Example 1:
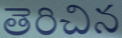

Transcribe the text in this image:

తెరిచిన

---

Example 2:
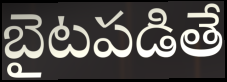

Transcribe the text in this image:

బైటపడితే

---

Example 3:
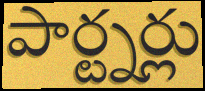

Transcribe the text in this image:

పార్ట్నర్లు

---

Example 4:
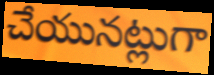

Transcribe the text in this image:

చేయునట్లుగా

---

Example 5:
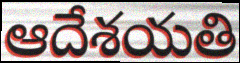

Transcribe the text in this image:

ఆదేశయతి